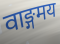
वाङ्गमय